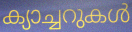
ക്യാച്ചറുകൾ